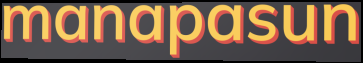
manapasun